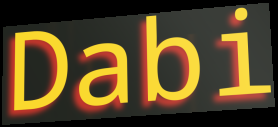
Dabi